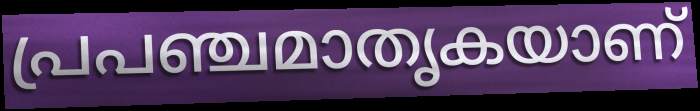
പ്രപഞ്ചമാതൃകയാണ്